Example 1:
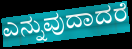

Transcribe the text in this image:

ಎನ್ನುವುದಾದರೆ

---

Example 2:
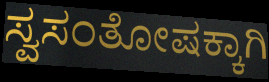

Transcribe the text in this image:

ಸ್ವಸಂತೋಷಕ್ಕಾಗಿ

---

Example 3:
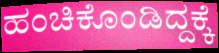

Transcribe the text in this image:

ಹಂಚಿಕೊಂಡಿದ್ದಕ್ಕೆ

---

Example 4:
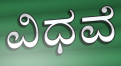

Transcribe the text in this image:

ವಿಧವೆ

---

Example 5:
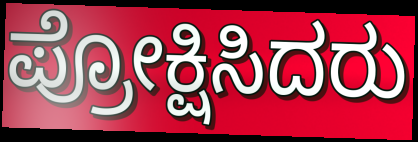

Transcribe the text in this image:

ಪ್ರೋಕ್ಷಿಸಿದರು